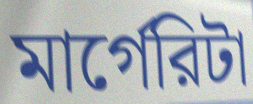
মার্গেরিটা